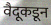
वैदूकडून